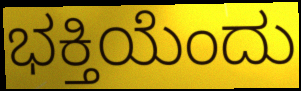
ಭಕ್ತಿಯೆಂದು